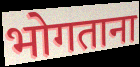
भोगताना